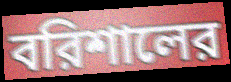
বরিশালের